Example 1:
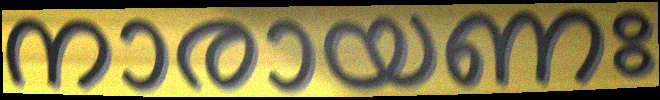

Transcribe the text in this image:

നാരായണഃ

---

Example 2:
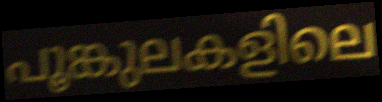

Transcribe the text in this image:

പൂങ്കുലകളിലെ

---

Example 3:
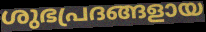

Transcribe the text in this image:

ശുഭപ്രദങ്ങളായ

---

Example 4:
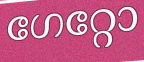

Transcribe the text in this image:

ഗേറ്റോ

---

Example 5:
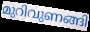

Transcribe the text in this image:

മുറിവുണങ്ങി